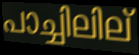
പാച്ചിലില്